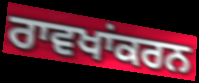
ਰਾਵਖਾਂਕਰਨ